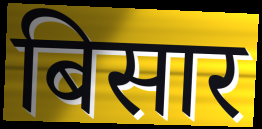
बिसार